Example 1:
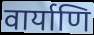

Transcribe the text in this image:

वार्याणि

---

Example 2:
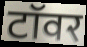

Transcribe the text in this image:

टॉवर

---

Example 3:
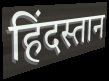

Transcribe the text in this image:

हिंदस्तान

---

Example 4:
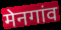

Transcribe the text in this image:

मेनगांव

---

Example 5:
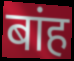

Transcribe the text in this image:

बांह